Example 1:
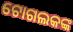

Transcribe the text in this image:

ଟୋଗଲକଙ୍କ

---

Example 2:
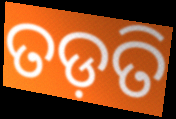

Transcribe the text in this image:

ତଡ଼ତି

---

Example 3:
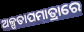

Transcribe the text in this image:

ଅଳ୍ପତାପମାତ୍ରାରେ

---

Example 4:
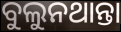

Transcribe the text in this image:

ବୁଲୁନଥାନ୍ତା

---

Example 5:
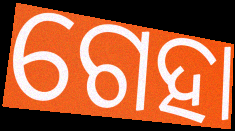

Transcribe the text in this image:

ଗେହା